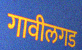
गावीलगड